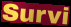
Survi